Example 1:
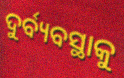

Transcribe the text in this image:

ଦୁର୍ବ୍ୟବସ୍ଥାକୁ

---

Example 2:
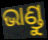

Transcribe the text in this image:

ଭାଣ୍ଡୁ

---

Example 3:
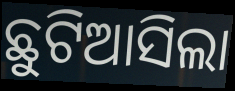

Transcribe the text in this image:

ଛୁଟିଆସିଲା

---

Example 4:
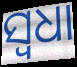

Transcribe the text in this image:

ସ୍ୱଧା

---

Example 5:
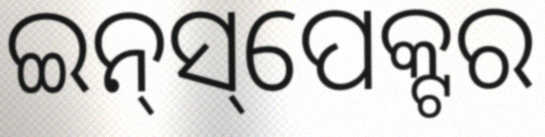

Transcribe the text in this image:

ଇନ୍‍ସ୍‌ପେକ୍ଟର